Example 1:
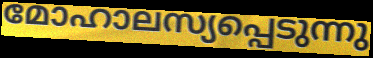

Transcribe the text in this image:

മോഹാലസ്യപ്പെടുന്നു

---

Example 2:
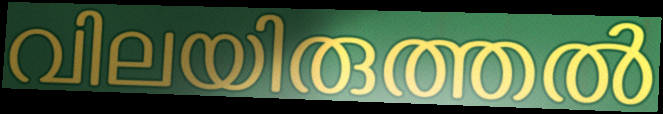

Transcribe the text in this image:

വിലയിരുത്തൽ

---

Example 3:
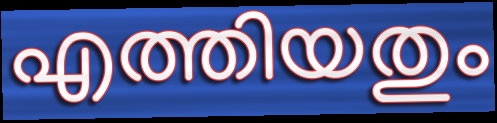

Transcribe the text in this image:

എത്തിയതും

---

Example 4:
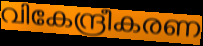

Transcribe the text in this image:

വികേന്ദ്രീകരണ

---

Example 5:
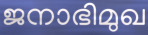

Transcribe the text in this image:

ജനാഭിമുഖ